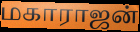
மகாராஜன்